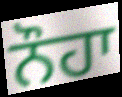
ਨੌਹਾ